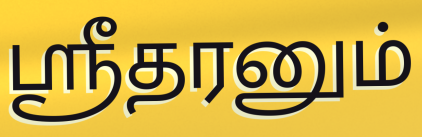
ஸ்ரீதரனும்